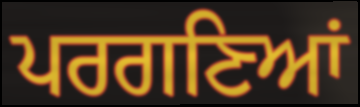
ਪਰਗਣਿਆਂ